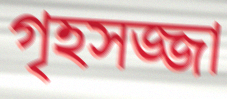
গৃহসজ্জা